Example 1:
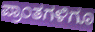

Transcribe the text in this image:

ಪ್ರಾಂತಗಳಿಗೂ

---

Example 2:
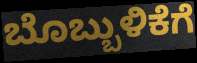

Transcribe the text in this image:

ಬೊಬ್ಬುಳಿಕೆಗೆ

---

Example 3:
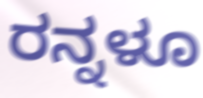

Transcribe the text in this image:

ರನ್ನಳೂ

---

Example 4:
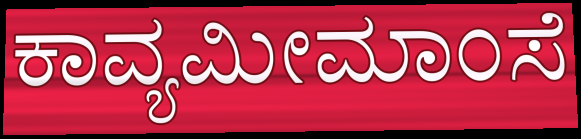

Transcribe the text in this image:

ಕಾವ್ಯಮೀಮಾಂಸೆ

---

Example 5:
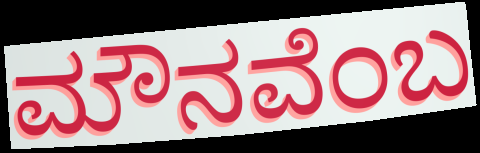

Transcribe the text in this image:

ಮೌನವೆಂಬ